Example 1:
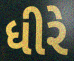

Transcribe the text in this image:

ધીરે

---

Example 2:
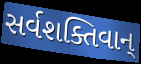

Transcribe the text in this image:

સર્વશક્તિવાન્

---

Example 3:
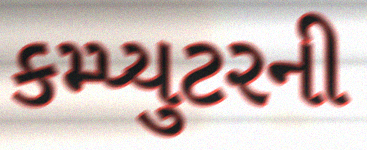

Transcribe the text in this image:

કમ્પ્યુટરની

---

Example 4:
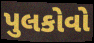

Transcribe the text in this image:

પુલકોવો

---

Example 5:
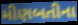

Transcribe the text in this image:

મીણબતીના